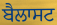
ਬੈਲਾਸਟ